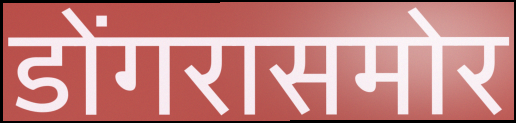
डोंगरासमोर